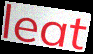
leat